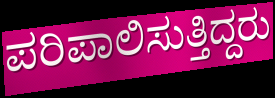
ಪರಿಪಾಲಿಸುತ್ತಿದ್ದರು